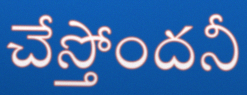
చేస్తోందనీ